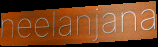
neelanjana